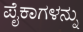
ಪೈಕಾಗಳನ್ನು